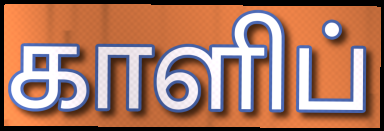
காளிப்